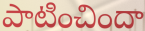
పాటించిందా